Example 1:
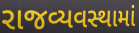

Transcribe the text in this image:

રાજવ્યવસ્થામાં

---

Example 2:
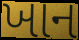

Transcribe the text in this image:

ખાન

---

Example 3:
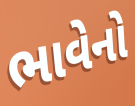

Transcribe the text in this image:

ભાવેનો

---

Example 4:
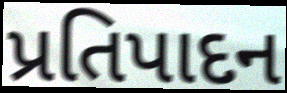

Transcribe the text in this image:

પ્રતિપાદન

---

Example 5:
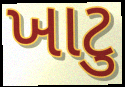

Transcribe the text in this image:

ખાટુ